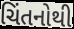
ચિંતનોથી